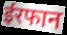
ईरफान